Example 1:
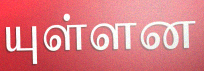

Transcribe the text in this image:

யுள்ளன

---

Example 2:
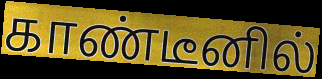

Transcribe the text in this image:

காண்டீனில்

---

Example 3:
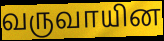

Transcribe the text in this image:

வருவாயின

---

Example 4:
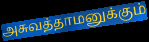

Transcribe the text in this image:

அசுவத்தாமனுக்கும்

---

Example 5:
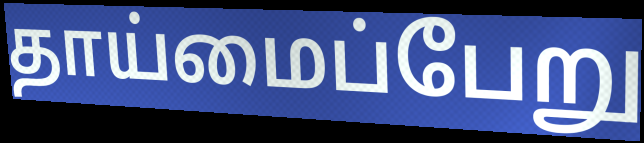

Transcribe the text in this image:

தாய்மைப்பேறு